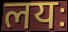
लयः